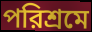
পরিশ্রমে